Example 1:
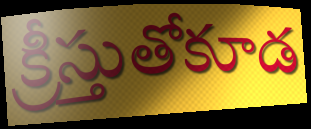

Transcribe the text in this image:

క్రీస్తుతోకూడ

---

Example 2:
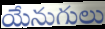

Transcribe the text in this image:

యేనుగులు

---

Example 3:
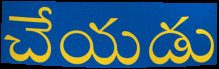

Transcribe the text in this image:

చేయడు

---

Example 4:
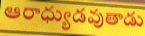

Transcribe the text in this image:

ఆరాధ్యుడవుతాడు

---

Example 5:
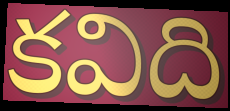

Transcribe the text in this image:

కవిది